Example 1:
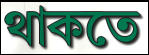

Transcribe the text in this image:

থাকতে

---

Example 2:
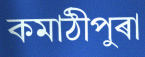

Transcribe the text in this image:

কমাঠীপুৰা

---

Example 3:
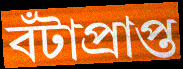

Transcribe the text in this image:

বঁটাপ্ৰাপ্ত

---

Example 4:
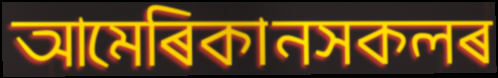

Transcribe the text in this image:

আমেৰিকানসকলৰ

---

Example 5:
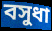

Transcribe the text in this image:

বসুধা